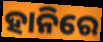
ହାନିରେ